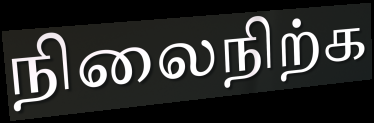
நிலைநிற்க